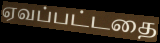
ஏவப்பட்டதை